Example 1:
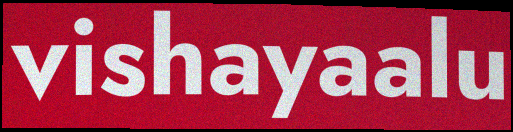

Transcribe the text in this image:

vishayaalu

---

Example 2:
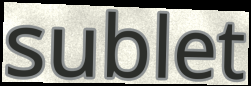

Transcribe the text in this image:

sublet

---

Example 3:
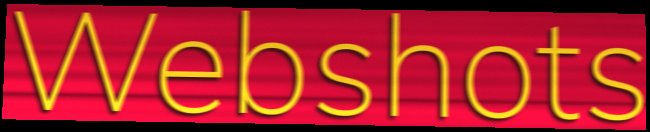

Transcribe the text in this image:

Webshots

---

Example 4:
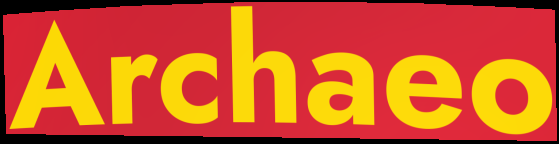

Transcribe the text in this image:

Archaeo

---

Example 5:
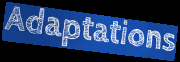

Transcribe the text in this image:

Adaptations